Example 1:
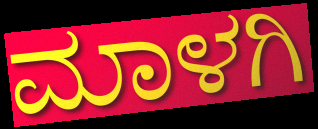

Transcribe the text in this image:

ಮಾಳಗಿ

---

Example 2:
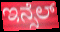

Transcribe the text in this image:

ಇನ್ಸೆಲ್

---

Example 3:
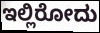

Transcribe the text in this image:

ಇಲ್ಲಿರೋದು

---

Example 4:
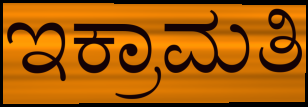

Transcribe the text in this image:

ಇಕ್ರಾಮತಿ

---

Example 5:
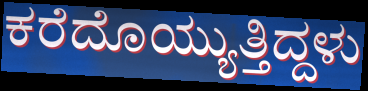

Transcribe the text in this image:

ಕರೆದೊಯ್ಯುತ್ತಿದ್ದಳು